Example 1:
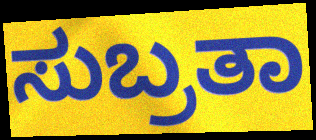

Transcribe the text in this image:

ಸುಬ್ರತಾ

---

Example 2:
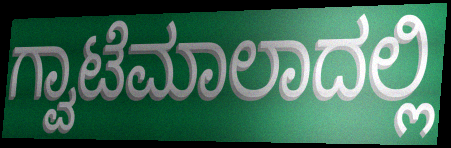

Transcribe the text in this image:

ಗ್ವಾಟೆಮಾಲಾದಲ್ಲಿ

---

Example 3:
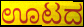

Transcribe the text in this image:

ಊಟದ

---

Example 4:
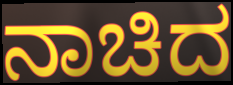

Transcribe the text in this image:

ನಾಚಿದ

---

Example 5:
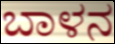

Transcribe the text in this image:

ಬಾಳನ